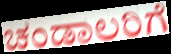
ಚಂಡಾಲರಿಗೆ